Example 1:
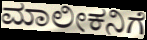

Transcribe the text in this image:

ಮಾಲೀಕನಿಗೆ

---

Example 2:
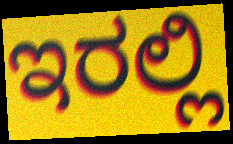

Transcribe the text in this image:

ಇರಲ್ಲಿ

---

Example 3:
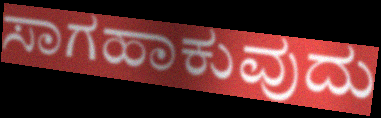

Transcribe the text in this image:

ಸಾಗಹಾಕುವುದು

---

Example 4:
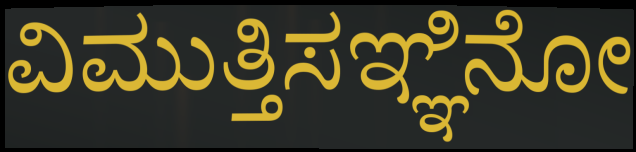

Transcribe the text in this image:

ವಿಮುತ್ತಿಸಞ್ಞಿನೋ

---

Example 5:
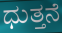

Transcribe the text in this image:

ಧುತ್ತನೆ